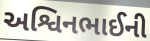
અશ્વિનભાઈની